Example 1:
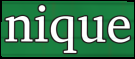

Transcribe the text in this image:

nique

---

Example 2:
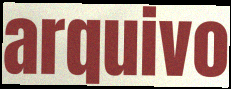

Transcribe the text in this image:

arquivo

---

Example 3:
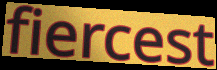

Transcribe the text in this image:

fiercest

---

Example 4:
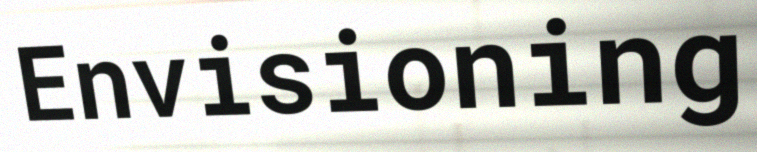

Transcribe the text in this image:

Envisioning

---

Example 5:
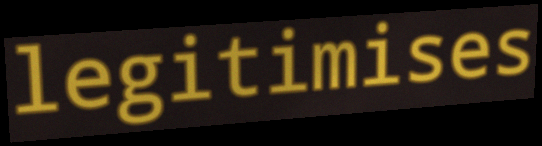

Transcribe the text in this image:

legitimises